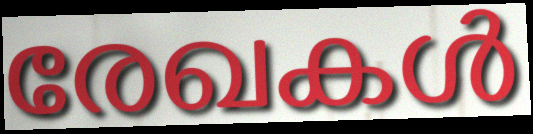
രേഖകൾ